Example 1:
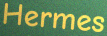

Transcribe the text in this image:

Hermes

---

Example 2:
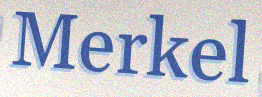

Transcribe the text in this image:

Merkel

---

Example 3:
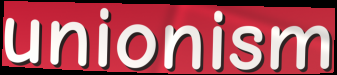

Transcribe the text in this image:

unionism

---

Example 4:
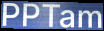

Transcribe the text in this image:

PPTam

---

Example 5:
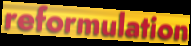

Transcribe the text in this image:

reformulation